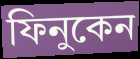
ফিনুকেন